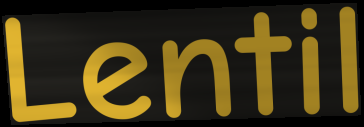
Lentil